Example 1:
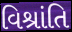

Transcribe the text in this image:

વિશ્રાંતિ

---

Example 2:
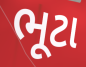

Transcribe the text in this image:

ભૂટા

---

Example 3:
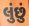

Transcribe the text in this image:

લુંછું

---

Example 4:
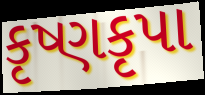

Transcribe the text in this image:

કૃષ્ણકૃપા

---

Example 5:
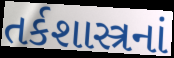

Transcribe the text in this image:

તર્કશાસ્ત્રનાં